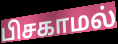
பிசகாமல்